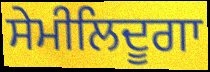
ਸੇਮੀਲਿਦੂਗਾ